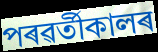
পৰৱৰ্তীকালৰ